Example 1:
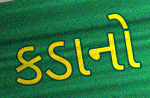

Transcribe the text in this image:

કડાનો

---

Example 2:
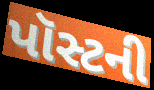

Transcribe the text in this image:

પૉસ્ટની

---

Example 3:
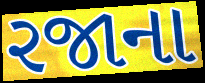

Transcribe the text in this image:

રજાના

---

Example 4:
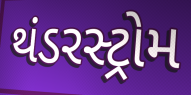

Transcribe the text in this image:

થંડરસ્ટ્રોમ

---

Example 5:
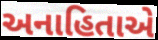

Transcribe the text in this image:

અનાહિતાએ